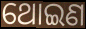
ଥୋଇଣ